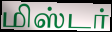
மிஸ்டர்